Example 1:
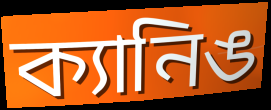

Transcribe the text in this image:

ক্যানিঙ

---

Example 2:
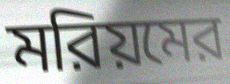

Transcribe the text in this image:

মরিয়মের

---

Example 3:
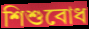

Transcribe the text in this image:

শিশুবোধ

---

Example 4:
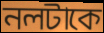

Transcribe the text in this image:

নলটাকে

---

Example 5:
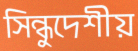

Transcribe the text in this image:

সিন্ধুদেশীয়